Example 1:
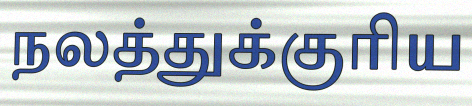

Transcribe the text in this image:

நலத்துக்குரிய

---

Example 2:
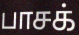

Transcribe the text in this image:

பாசக்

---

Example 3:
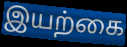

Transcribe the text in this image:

இயற்கை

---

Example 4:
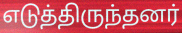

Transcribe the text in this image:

எடுத்திருந்தனர்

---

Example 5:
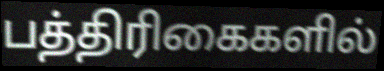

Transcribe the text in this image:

பத்திரிகைகளில்